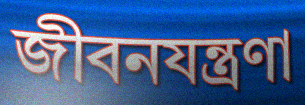
জীবনযন্ত্রণা